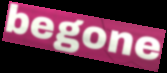
begone